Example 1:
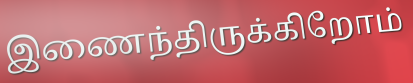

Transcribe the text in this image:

இணைந்திருக்கிறோம்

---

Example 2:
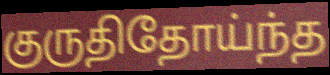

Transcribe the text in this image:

குருதிதோய்ந்த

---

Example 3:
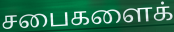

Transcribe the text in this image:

சபைகளைக்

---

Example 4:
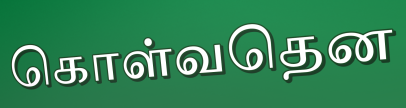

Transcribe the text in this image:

கொள்வதென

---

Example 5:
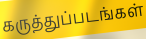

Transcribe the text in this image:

கருத்துப்படங்கள்